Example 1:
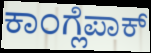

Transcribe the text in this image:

ಕಾಂಗ್ಲೆಪಾಕ್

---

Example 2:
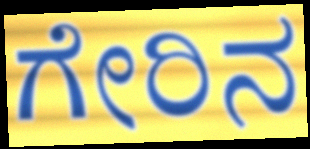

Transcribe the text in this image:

ಗೇರಿನ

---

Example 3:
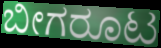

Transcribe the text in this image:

ಬೀಗರೂಟ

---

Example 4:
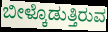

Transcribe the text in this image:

ಬೀಳ್ಕೊಡುತ್ತಿರುವ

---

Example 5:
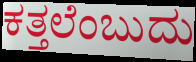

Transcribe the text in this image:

ಕತ್ತಲೆಂಬುದು